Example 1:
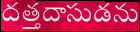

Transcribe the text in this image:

దత్తదాసుడను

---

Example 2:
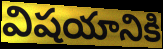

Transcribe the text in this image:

విషయానికి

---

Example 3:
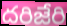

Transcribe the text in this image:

దరిజేరి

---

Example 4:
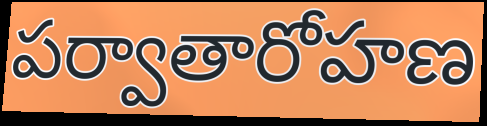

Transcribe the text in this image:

పర్వాతారోహణ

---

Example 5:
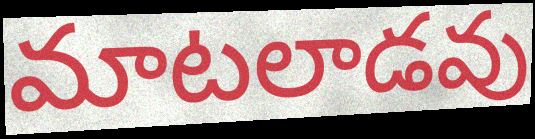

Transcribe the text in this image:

మాటలాడవు